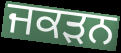
ਜਕੜਨ